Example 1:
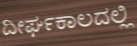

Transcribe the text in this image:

ದೀರ್ಘಕಾಲದಲ್ಲಿ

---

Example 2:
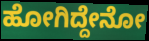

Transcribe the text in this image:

ಹೋಗಿದ್ದೇನೋ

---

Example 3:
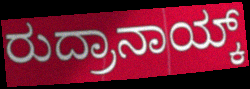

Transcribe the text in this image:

ರುದ್ರಾನಾಯ್ಕ್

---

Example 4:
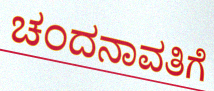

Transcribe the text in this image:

ಚಂದನಾವತಿಗೆ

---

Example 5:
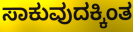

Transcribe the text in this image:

ಸಾಕುವುದಕ್ಕಿಂತ